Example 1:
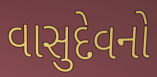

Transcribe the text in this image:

વાસુદેવનો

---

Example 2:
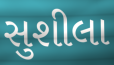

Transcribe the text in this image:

સુશીલા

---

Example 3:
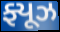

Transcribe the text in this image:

ફ્યૂઝ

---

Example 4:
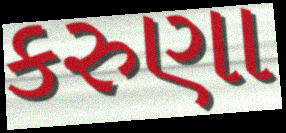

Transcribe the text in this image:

કરુણા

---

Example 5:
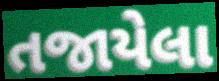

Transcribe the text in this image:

તજાયેલા